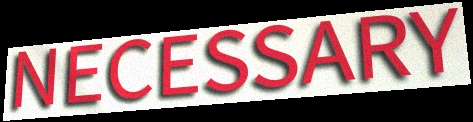
NECESSARY